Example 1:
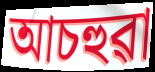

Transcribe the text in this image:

আচহুৱা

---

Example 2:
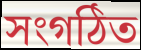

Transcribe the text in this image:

সংগঠিত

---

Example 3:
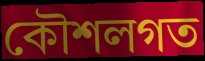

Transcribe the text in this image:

কৌশলগত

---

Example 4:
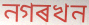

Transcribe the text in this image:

নগৰখন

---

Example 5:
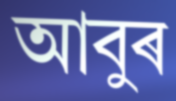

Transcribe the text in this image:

আবুৰ